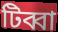
টিব্বা